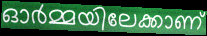
ഓർമ്മയിലേക്കാണ്